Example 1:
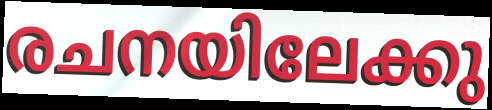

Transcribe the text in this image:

രചനയിലേക്കു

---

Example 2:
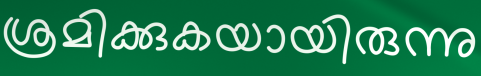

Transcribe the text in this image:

ശ്രമിക്കുകയായിരുന്നു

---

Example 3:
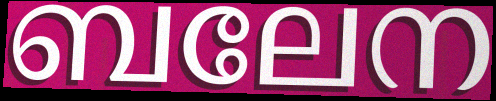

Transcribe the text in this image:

ബലേന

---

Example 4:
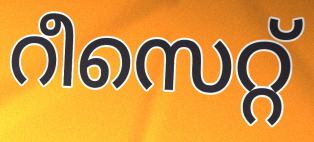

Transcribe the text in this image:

റീസെറ്റ്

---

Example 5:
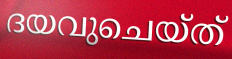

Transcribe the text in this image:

ദയവുചെയ്ത്